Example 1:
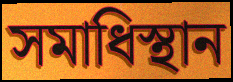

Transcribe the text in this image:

সমাধিস্থান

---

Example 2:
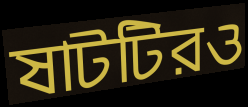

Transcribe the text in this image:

ষাটটিরও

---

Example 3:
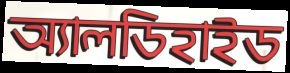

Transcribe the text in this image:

অ্যালডিহাইড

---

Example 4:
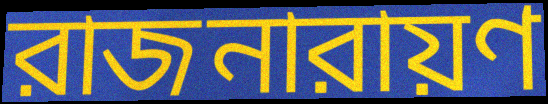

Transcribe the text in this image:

রাজনারায়ণ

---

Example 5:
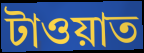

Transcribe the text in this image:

টাওয়াত